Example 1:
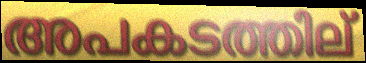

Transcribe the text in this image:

അപകടത്തില്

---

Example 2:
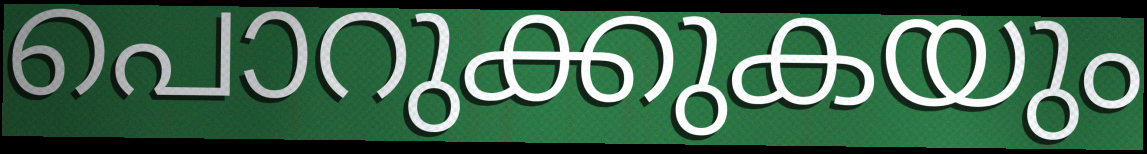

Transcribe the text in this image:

പൊറുക്കുകയും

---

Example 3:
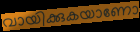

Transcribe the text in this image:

വായിക്കുകയാണോ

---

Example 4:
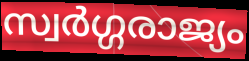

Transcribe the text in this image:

സ്വർഗ്ഗരാജ്യം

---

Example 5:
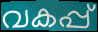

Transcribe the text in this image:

വകപ്പ്